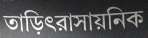
তাড়িৎরাসায়নিক